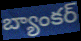
బ్యాంకర్